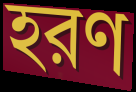
হরণ